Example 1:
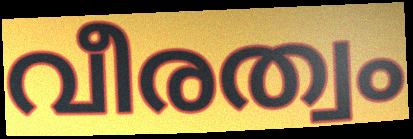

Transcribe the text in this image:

വീരത്വം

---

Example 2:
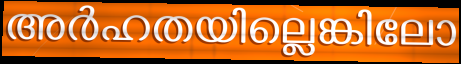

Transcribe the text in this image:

അർഹതയില്ലെങ്കിലോ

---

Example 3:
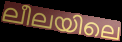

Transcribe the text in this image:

ലീലയിലെ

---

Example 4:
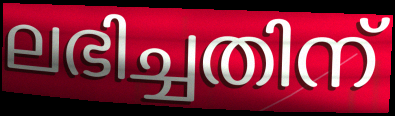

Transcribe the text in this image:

ലഭിച്ചതിന്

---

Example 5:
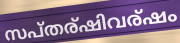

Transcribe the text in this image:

സപ്തര്ഷിവര്ഷം